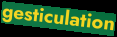
gesticulation